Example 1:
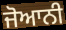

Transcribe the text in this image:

ਜੋਆਨੀ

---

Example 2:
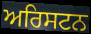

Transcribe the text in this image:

ਅਰਿਸਟਨ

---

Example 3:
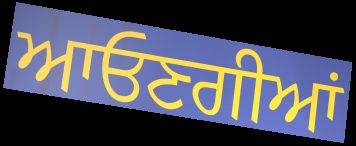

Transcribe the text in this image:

ਆਓਣਗੀਆਂ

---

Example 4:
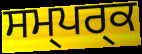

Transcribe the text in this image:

ਸਮ੍ਪਰ੍ਕ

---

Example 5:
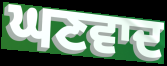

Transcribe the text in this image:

ਘਣਵਾਦ